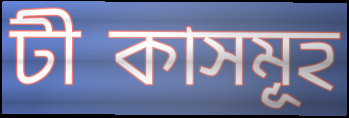
টীকাসমূহ